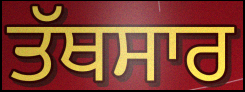
ਤੱਥਸਾਰ